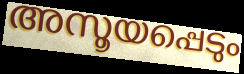
അസൂയപ്പെടും